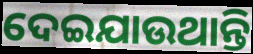
ଦେଇଯାଉଥାନ୍ତି